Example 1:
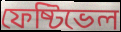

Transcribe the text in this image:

ফেষ্টিভেল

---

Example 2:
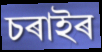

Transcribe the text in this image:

চৰাইৰ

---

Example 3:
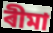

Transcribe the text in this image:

ৰীমা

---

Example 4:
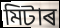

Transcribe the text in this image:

মিটাৰ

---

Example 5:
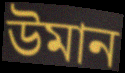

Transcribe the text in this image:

উমান